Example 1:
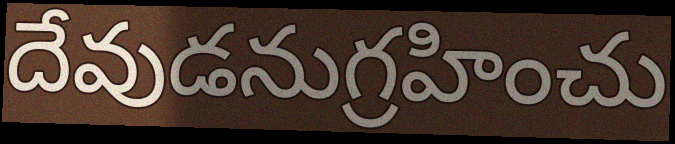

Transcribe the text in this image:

దేవుడనుగ్రహించు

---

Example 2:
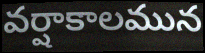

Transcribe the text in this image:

వర్షాకాలమున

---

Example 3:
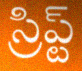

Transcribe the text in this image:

స్రిప్ట్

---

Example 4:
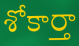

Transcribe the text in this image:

శోకార్తా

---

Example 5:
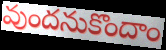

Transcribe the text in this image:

వుందనుకొందాం